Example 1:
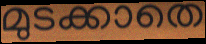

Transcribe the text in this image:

മുടക്കാതെ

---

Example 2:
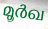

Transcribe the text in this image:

മൂർഖ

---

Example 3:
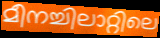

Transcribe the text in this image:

മീനച്ചിലാറ്റിലെ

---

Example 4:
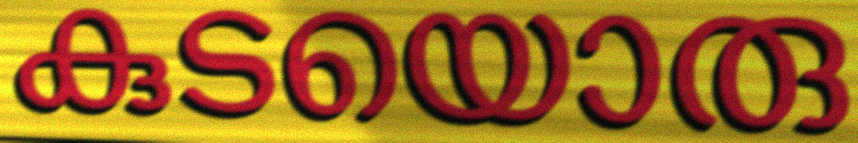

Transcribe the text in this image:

കുടയൊരു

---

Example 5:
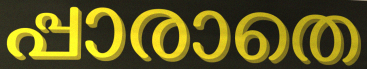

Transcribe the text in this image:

പ്പാരാതെ